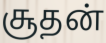
சூதன்